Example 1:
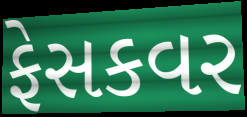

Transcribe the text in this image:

ફેસકવર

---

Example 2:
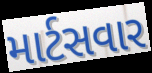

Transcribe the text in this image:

માર્ટસવાર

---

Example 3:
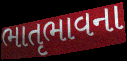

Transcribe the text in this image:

ભાતૃભાવના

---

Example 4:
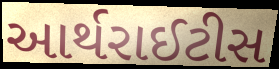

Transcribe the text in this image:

આર્થરાઈટીસ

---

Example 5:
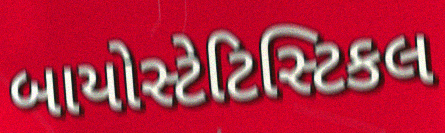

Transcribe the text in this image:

બાયોસ્ટેટિસ્ટિકલ